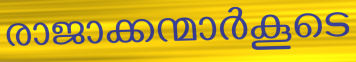
രാജാക്കന്മാർകൂടെ